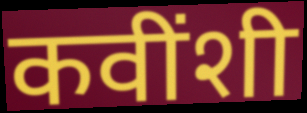
कवींशी